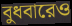
বুধবারেও